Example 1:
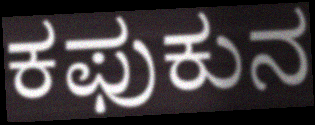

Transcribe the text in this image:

ಕಫುಕುನ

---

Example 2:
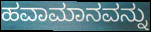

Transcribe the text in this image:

ಹವಾಮಾನವನ್ನು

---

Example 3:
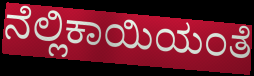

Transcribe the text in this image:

ನೆಲ್ಲಿಕಾಯಿಯಂತೆ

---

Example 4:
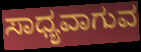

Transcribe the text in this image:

ಸಾಧ್ಯವಾಗುವ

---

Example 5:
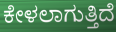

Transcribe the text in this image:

ಕೇಳಲಾಗುತ್ತಿದೆ